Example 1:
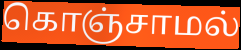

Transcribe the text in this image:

கொஞ்சாமல்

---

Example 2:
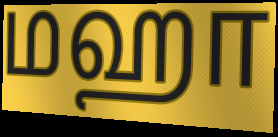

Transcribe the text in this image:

மஹா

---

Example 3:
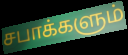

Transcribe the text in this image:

சபாக்களும்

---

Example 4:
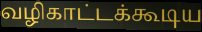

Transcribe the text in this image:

வழிகாட்டக்கூடிய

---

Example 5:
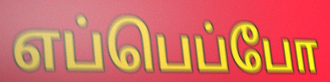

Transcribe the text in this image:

எப்பெப்போ